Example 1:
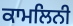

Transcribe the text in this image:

ਕਾਮਲਿਨੀ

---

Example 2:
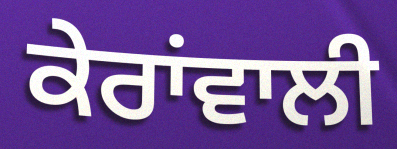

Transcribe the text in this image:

ਕੇਰਾਂਵਾਲੀ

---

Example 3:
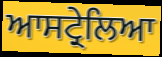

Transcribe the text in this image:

ਆਸਟ੍ਰੇਲਿਆ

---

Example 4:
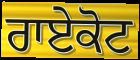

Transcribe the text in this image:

ਰਾਏਕੋਟ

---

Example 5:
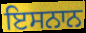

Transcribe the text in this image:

ਇਸਨਾਨ